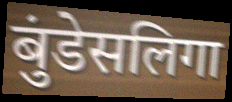
बुंडेसलिगा